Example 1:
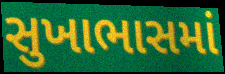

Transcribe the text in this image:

સુખાભાસમાં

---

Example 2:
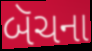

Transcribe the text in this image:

બૅચના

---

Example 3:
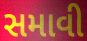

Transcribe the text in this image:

સમાવી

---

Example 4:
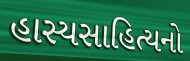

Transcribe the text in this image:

હાસ્યસાહિત્યનો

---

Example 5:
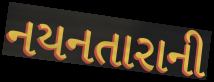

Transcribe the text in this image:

નયનતારાની